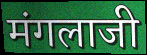
मंगलाजी